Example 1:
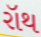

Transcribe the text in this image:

રૉથ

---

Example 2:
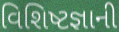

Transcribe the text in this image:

વિશિષ્ટજ્ઞાની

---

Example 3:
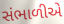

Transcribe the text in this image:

સંભાળીએ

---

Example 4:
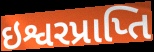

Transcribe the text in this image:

ઇશ્વરપ્રાપ્તિ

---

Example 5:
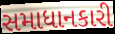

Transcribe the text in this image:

સમાધાનકારી